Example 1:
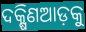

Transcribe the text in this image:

ଦକ୍ଷିଣଆଡ଼କୁ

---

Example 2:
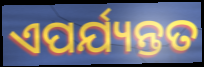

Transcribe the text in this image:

ଏପର୍ଯ୍ୟନ୍ତତ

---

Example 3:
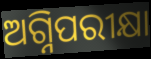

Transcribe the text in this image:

ଅଗ୍ନିପରୀକ୍ଷା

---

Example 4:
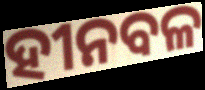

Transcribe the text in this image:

ହୀନବଳ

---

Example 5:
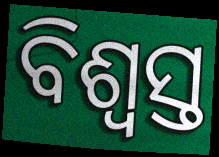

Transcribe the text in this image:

ବିଶ୍ବସ୍ତ